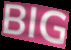
BIG